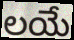
లయే